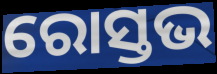
ରୋସ୍ତଭ